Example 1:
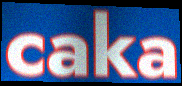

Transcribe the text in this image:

caka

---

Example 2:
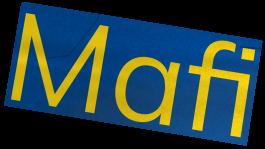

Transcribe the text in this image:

Mafi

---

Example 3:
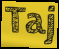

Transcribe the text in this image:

Taj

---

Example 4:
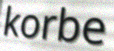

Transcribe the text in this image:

korbe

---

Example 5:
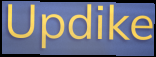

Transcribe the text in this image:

Updike